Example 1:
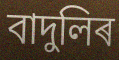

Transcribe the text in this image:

বাদুলিৰ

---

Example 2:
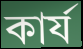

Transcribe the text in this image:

কাৰ্য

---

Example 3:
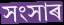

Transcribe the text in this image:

সংসাৰ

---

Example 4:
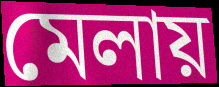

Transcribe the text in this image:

মেলায়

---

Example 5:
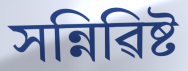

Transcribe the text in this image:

সন্নিৱিষ্ট